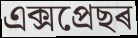
এক্সপ্ৰেছৰ